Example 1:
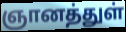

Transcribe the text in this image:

ஞானத்துள்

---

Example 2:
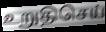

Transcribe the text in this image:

உறுதிசெய்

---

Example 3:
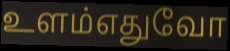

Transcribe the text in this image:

உளம்எதுவோ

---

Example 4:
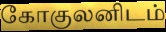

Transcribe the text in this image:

கோகுலனிடம்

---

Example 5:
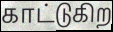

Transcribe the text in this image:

காட்டுகிற